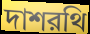
দাশরথি